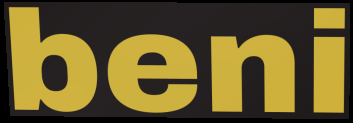
beni